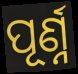
ପୂର୍ଣ୍ନ